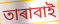
তাৰাবাই